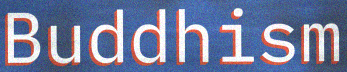
Buddhism